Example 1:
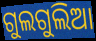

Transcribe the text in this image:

ଗୁଲଗୁଲିଆ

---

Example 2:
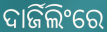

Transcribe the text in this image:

ଦାର୍ଜିଲିଂରେ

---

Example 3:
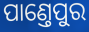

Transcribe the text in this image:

ପାଣ୍ତେପୁର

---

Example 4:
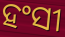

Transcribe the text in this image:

ହଂସୀ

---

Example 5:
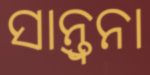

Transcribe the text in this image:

ସାନ୍ତ୍ବନା